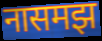
नासमझ